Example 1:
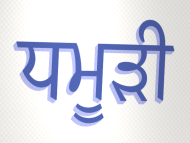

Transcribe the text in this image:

ਧਮੂੜੀ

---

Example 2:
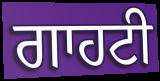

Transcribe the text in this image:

ਗਾਹਟੀ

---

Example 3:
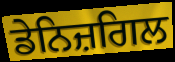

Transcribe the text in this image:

ਡੇਨਿਜ਼ਗਿਲ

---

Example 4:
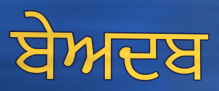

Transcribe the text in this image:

ਬੇਅਦਬ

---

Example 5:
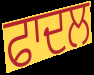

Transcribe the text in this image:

ਫਾਦਲ